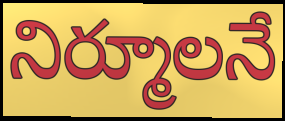
నిర్మూలనే